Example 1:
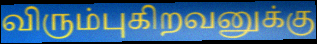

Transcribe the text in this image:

விரும்புகிறவனுக்கு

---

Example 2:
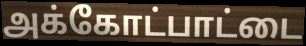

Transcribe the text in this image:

அக்கோட்பாட்டை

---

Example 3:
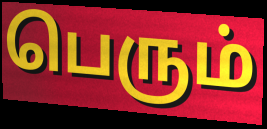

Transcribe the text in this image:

பெரும்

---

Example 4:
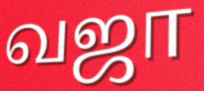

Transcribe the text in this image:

வஜா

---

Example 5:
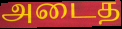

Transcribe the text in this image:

அடைத